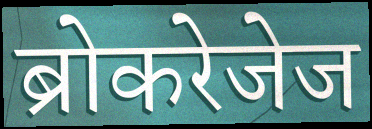
ब्रोकरेजेज